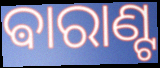
ଵାରାଣ୍ଟ